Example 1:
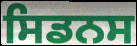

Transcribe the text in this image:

ਸਿਡਨਸ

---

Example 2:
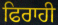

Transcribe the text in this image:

ਫਿਰਾਹੀ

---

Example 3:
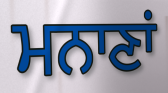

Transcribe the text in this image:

ਮਨਾਣਾਂ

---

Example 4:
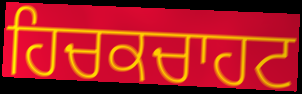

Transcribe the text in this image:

ਹਿਚਕਚਾਹਟ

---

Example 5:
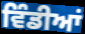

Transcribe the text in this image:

ਵਿੰਡੀਆਂ